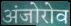
अंजोरोव